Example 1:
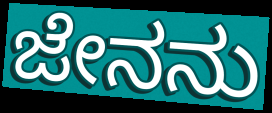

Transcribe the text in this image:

ಜೇನನು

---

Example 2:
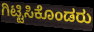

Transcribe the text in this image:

ಗಿಟ್ಟಿಸಿಕೊಂಡರು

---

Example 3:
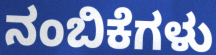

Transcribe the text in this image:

ನಂಬಿಕೆಗಳು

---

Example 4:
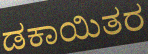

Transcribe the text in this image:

ಡಕಾಯಿತರ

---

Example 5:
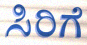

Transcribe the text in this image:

ಸಿರಿಗೆ